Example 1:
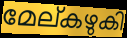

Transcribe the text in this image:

മേല്കഴുകി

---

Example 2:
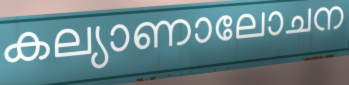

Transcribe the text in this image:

കല്യാണാലോചന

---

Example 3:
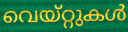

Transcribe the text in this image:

വെയ്റ്റുകൾ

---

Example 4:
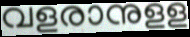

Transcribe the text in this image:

വളരാനുളള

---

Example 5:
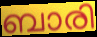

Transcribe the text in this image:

ബാരി